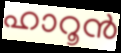
ഹാറൂൻ